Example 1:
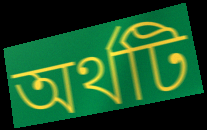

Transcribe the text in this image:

অর্থটি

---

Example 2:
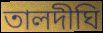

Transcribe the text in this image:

তালদীঘি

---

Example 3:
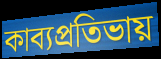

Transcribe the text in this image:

কাব্যপ্রতিভায়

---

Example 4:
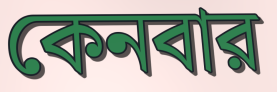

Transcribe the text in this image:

কেনবার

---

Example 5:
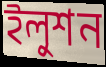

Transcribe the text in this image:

ইলুশন